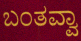
ಬಂತವ್ವಾ